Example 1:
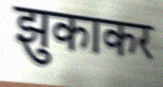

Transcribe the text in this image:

झुकाकर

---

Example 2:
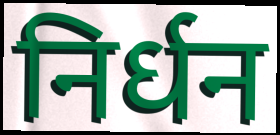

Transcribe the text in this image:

निर्धन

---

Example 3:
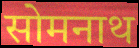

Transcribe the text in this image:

सोमनाथ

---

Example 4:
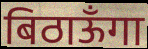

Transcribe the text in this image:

बिठाऊँगा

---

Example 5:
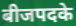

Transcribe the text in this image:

बीजपदके